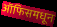
ऑफिसमधून